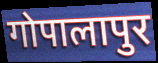
गोपालापुर